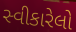
સ્વીકારેલો